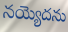
నయ్యెదను